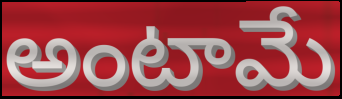
అంటామే